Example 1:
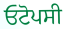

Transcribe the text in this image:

ਓਟੋਪਸੀ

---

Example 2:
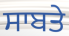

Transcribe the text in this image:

ਸਾਬਤੇ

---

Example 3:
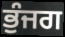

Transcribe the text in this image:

ਭੁੰਜਗ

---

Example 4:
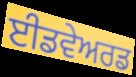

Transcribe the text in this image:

ਈਡਵੇਅਰਡ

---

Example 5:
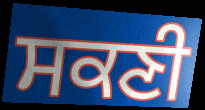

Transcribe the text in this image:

ਸਕਣੀ